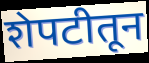
शेपटीतून